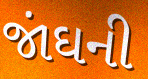
જાંઘની